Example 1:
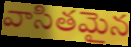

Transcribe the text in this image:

వాసితమైన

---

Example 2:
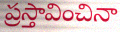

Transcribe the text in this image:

ప్రస్తావించినా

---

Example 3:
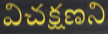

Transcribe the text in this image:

విచక్షణని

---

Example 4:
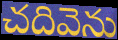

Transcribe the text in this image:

చదివెను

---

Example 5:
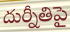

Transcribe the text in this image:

దుర్నీతిపై